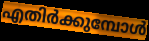
എതിർക്കുമ്പോൾ